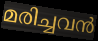
മരിച്ചവൻ